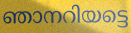
ഞാനറിയട്ടെ